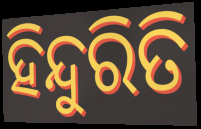
ହିନ୍ଦୁରିତି